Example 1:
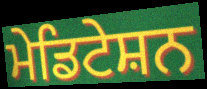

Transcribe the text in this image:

ਮੇਡਿਟੇਸ਼ਨ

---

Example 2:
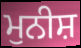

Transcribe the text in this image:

ਮੁਨੀਸ਼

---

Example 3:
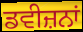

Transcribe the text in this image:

ਡਵੀਜ਼ਨਾਂ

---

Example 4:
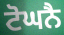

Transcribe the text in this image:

ਟੋਘਨੈ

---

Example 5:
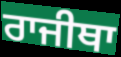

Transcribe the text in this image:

ਰਾਜੀਥਾ